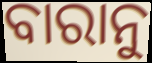
ବାରାନୁ